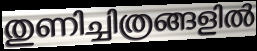
തുണിച്ചിത്രങ്ങളിൽ